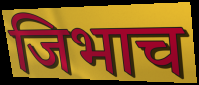
जिभाच